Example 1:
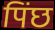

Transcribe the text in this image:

पिंछ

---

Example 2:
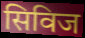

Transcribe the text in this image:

सिविज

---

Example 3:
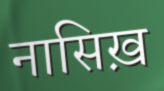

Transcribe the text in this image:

नासिख़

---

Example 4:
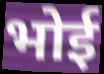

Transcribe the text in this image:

भोई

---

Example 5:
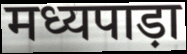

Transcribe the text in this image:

मध्यपाड़ा